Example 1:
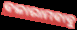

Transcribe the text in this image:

ବଳାରାମବାବୁ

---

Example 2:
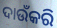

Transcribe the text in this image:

ଦାଉଁକରି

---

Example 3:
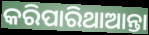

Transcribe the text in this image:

କରିପାରିଥାଆନ୍ତା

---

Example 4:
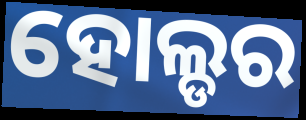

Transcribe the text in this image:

ହୋଲ୍ଡର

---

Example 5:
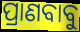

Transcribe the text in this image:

ପ୍ରାଣବାବୁ